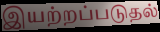
இயற்றப்படுதல்